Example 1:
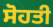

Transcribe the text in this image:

ਸੋਹਤੀ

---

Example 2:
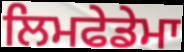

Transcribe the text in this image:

ਲਿਮਫੇਡੇਮਾ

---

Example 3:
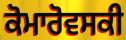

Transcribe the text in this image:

ਕੋਮਾਰੋਵਸਕੀ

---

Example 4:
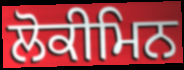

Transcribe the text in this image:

ਲੋਕੀਮਿਨ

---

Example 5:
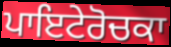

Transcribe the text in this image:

ਪਾਇਟੇਰੋਚਕਾ